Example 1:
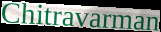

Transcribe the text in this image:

Chitravarman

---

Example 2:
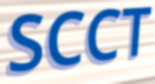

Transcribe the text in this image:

SCCT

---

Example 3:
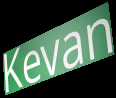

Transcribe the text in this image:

Kevan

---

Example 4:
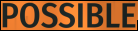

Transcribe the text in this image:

POSSIBLE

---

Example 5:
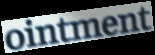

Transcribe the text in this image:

ointment